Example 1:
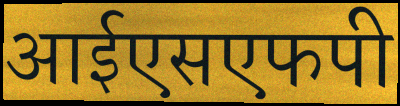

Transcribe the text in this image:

आईएसएफपी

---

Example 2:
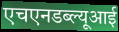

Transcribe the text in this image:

एचएनडब्ल्यूआई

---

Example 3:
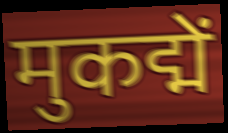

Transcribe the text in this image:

मुकद्में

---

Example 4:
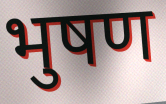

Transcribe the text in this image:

भुषण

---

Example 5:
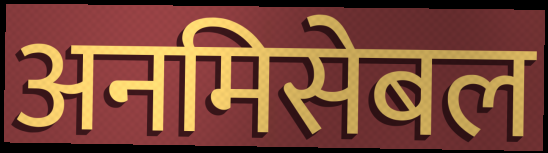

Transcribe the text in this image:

अनमिसेबल